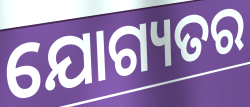
ଯୋଗ୍ୟତର